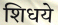
शिधये